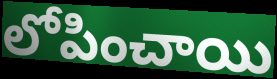
లోపించాయి